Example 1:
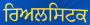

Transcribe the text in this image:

ਰਿਅਲਸਿਟਕ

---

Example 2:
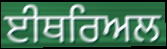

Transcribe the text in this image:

ਈਥਰਿਅਲ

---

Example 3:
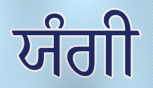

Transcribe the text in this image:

ਯੰਗੀ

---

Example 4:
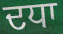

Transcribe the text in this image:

ਦਧਾ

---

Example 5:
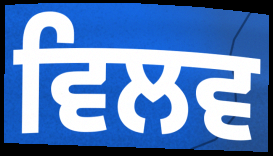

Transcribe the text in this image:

ਵਿਲਵ